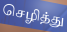
செழித்து